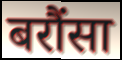
बरौंसा